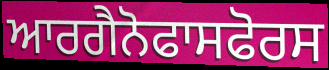
ਆਰਗੈਨੋਫਾਸਫੋਰਸ